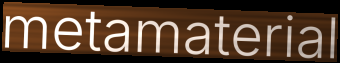
metamaterial